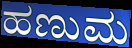
ಹಣುಮ